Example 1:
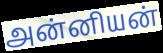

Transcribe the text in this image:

அன்னியன்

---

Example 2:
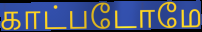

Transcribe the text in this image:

காட்படோமே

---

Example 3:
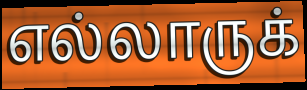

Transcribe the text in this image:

எல்லாருக்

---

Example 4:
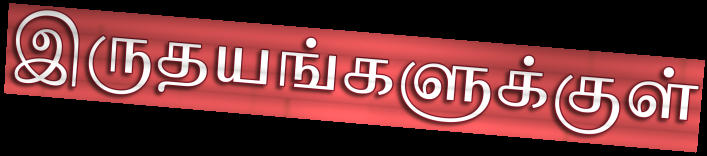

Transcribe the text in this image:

இருதயங்களுக்குள்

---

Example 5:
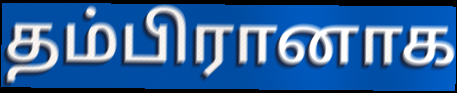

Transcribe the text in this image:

தம்பிரானாக